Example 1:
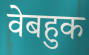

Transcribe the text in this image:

वेबहुक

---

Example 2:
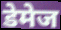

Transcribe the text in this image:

डेमेज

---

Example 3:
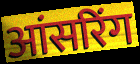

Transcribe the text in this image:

आंसरिंग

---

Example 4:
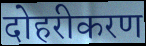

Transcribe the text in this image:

दोहरीकरण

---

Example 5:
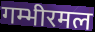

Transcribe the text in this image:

गम्भीरमल